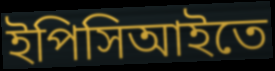
ইপিসিআইতে